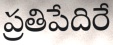
ప్రతిపేదిరే